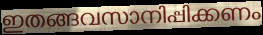
ഇതങ്ങവസാനിപ്പിക്കണം